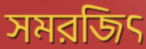
সমরজিৎ